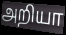
அறியா